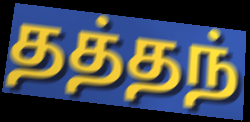
தத்தந்